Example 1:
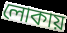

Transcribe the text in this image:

লোকায়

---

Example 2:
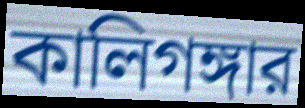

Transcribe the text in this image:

কালিগঙ্গার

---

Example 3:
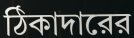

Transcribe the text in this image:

ঠিকাদারের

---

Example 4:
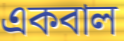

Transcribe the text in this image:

একবাল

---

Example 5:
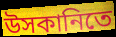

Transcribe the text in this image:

উসকানিতে